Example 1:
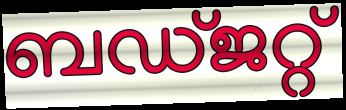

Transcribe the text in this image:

ബഡ്ജറ്റ്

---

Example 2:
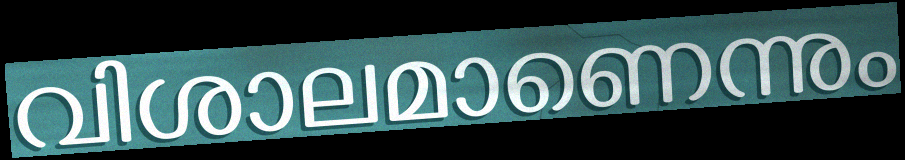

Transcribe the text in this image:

വിശാലമാണെന്നും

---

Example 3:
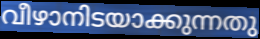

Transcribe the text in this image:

വീഴാനിടയാക്കുന്നതു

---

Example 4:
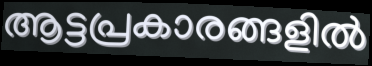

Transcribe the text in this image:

ആട്ടപ്രകാരങ്ങളിൽ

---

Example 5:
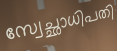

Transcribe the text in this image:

സ്വേച്ഛാധിപതി